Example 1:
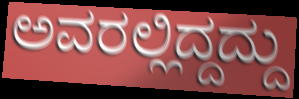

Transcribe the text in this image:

ಅವರಲ್ಲಿದ್ದದ್ದು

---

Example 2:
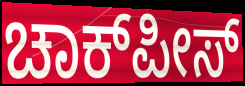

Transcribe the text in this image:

ಚಾಕ್‌ಪೀಸ್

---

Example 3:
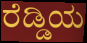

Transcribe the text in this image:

ರೆಡ್ಡಿಯ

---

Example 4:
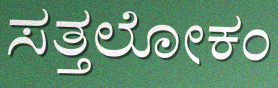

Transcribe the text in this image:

ಸತ್ತಲೋಕಂ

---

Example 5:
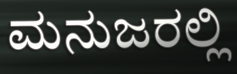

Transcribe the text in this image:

ಮನುಜರಲ್ಲಿ